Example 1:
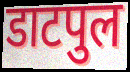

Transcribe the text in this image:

डाटपुल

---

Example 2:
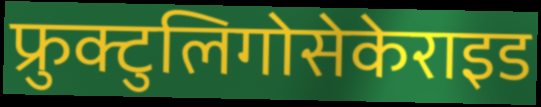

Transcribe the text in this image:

फ्रुक्टुलिगोसेकेराइड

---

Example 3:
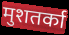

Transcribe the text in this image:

मुशतर्का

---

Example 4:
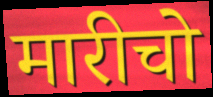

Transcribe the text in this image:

मारीचो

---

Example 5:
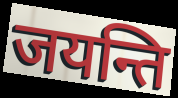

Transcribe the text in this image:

जयन्ति